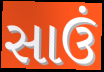
સાઉં